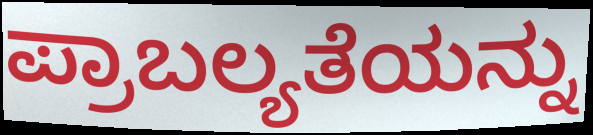
ಪ್ರಾಬಲ್ಯತೆಯನ್ನು